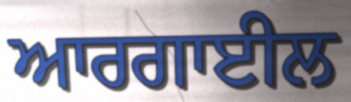
ਆਰਗਾਈਲ